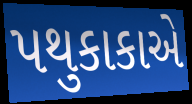
પથુકાકાએ